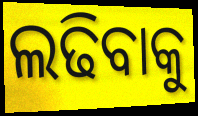
ଲଢିବାକୁ